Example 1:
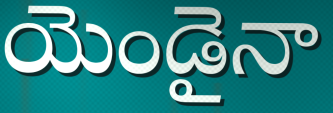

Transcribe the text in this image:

యెండైనా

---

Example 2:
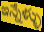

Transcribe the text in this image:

ఇన్నేళ్ళు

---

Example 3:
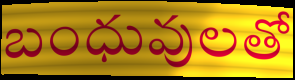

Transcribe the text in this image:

బంధువులతో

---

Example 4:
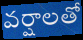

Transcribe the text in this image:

వర్షాలతో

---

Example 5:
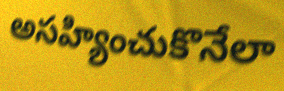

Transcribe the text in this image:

అసహ్యించుకొనేలా